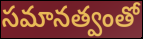
సమానత్వంతో